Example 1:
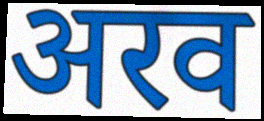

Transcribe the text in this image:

अरव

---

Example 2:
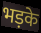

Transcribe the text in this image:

भड़के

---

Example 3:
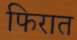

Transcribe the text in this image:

फिरात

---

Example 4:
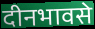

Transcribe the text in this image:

दीनभावसे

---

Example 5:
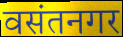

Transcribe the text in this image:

वसंतनगर